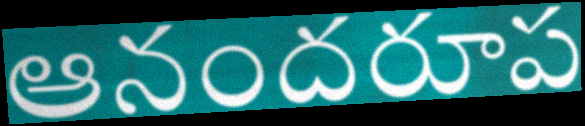
ఆనందరూప